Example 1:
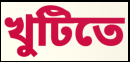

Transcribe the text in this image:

খুটিতে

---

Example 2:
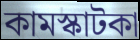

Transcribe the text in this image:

কামস্কাটকা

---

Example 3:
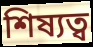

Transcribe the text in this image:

শিষ্যত্ব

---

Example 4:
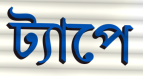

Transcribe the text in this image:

ট্যাপে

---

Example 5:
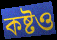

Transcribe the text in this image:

কষ্টও